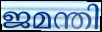
ജമന്തി